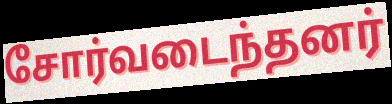
சோர்வடைந்தனர்